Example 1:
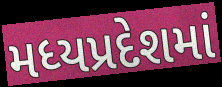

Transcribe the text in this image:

મધ્યપ્રદેશમાં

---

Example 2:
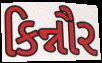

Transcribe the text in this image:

કિન્નૌર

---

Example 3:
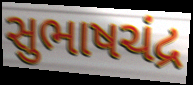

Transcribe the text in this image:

સુભાષચંદ્ર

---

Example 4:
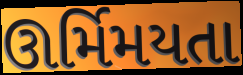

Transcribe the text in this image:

ઊર્મિમયતા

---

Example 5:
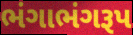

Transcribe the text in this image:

ભંગાભંગરૂપ